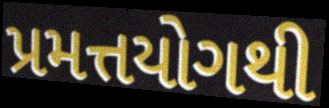
પ્રમત્તયોગથી